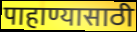
पाहाण्यासाठी